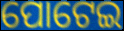
ପୋଟେଇ